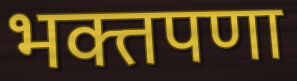
भक्तपणा